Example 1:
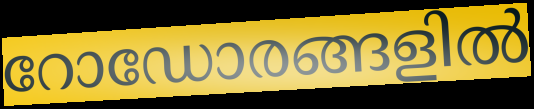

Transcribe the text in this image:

റോഡോരങ്ങളിൽ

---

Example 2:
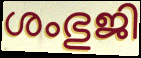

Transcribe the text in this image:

ശംഭുജി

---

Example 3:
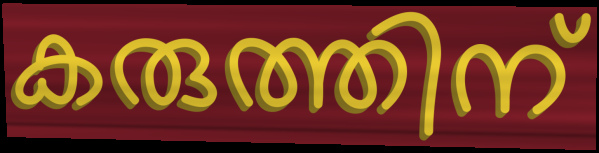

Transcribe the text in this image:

കരുത്തിന്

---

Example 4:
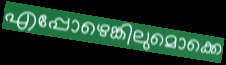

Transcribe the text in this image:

എപ്പോഴെങ്കിലുമൊക്കെ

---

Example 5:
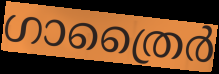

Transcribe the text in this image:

ഗാത്രൈർ